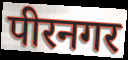
पीरनगर